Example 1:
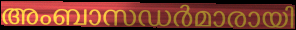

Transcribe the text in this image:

അംബാസഡർമാരായി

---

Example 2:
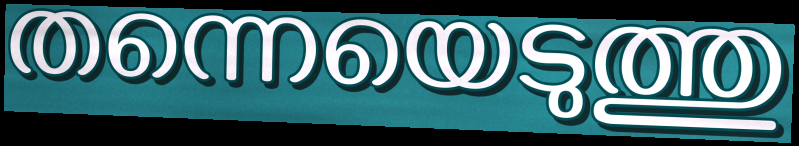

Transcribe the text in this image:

തന്നെയെടുത്തു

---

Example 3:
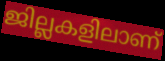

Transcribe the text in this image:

ജില്ലകളിലാണ്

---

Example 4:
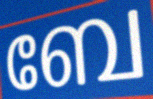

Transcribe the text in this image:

ബേ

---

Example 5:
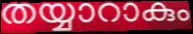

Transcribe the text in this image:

തയ്യാറാകും